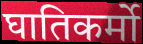
घातिकर्मो